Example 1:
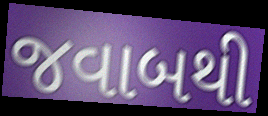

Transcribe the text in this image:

જવાબથી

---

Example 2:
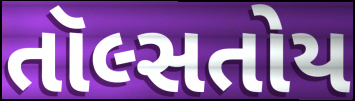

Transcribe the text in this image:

તૉલ્સતોય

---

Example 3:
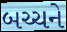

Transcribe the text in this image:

બચ્ચને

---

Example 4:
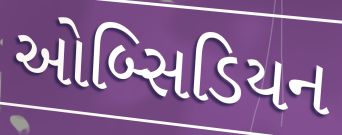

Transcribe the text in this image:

ઓબ્સિડિયન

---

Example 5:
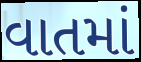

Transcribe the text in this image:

વાતમાં